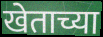
खेताच्या